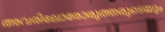
അവരിലോരോരുത്തരുടെയും